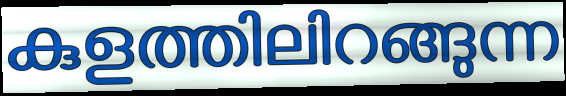
കുളത്തിലിറങ്ങുന്ന